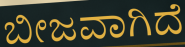
ಬೀಜವಾಗಿದೆ